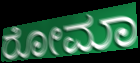
ರೋಮಾ